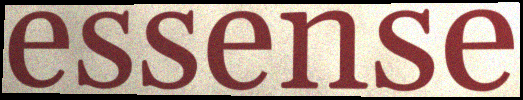
essense